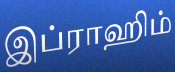
இப்ராஹிம்